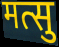
मत्सु